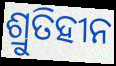
ଶ୍ରୁତିହୀନ